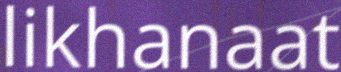
likhanaat